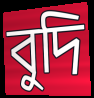
বুদি